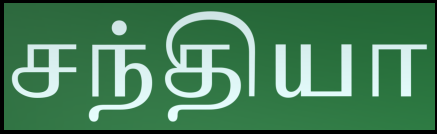
சந்தியா